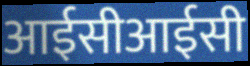
आईसीआईसी